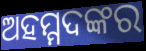
ଅହମ୍ମଦଙ୍କର